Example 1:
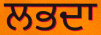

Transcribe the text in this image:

ਲਭਦਾ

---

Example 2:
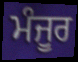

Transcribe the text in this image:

ਮੰਜੂਰ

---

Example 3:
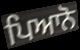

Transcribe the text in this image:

ਪਿਆਨੋ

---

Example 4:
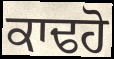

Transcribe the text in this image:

ਕਾਢਹੋ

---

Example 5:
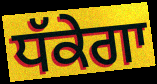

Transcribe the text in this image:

ਧੱਕੇਗਾ